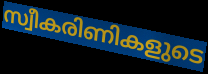
സ്വീകരിണികളുടെ